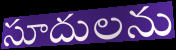
సూదులను